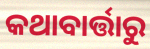
କଥାବାର୍ତ୍ତାରୁ